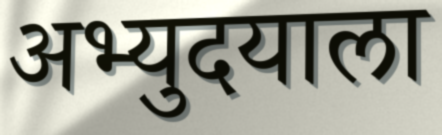
अभ्युदयाला